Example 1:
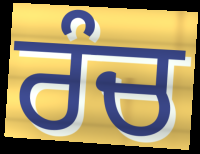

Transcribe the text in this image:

ਰੰਚ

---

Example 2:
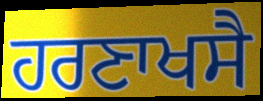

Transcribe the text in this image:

ਹਰਣਾਖਸੈ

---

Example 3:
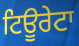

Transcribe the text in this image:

ਟਿਊਰੇਟਾ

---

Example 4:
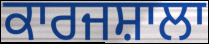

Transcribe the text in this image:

ਕਾਰਜਸ਼ਾਲਾ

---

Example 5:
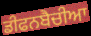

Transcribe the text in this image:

ਡੀਫਨਬੈਚੀਆ